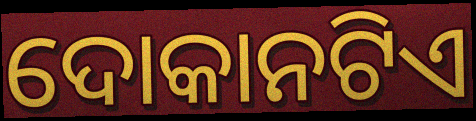
ଦୋକାନଟିଏ